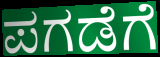
ಪಗಡೆಗೆ